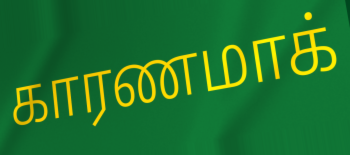
காரணமாக்